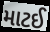
માટઈ